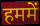
हममें